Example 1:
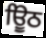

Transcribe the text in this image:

ਊਿਠ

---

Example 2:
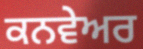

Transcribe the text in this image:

ਕਨਵੇਅਰ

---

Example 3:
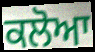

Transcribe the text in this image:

ਕਲੋਆ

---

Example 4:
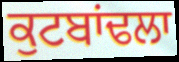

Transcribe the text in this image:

ਕੁਟਬਾਂਢਲਾ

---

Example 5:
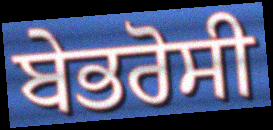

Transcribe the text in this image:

ਬੇਭਰੋਸੀ